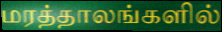
மரத்தாலங்களில்